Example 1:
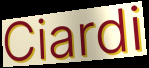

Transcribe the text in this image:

Ciardi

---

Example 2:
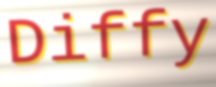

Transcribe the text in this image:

Diffy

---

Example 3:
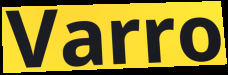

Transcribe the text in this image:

Varro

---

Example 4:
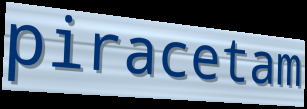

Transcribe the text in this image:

piracetam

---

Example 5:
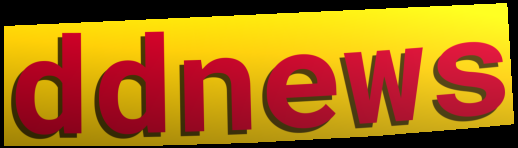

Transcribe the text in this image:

ddnews